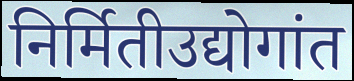
निर्मितीउद्योगांत